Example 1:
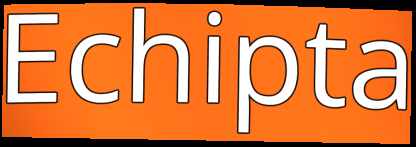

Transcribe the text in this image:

Echipta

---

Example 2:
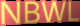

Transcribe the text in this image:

NBWL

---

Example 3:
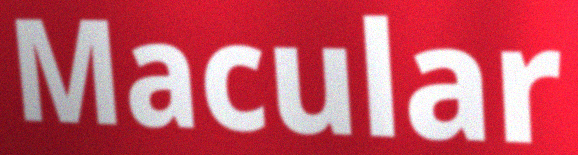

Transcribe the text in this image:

Macular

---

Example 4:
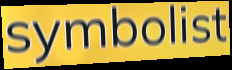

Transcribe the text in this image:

symbolist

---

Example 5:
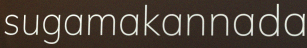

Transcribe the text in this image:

sugamakannada